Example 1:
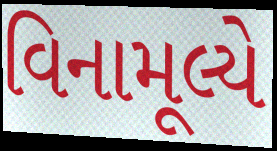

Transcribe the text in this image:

વિનામૂલ્યે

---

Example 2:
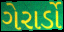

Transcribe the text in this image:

ગેરાર્ડો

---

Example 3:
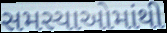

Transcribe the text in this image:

સમસ્યાઓમાંથી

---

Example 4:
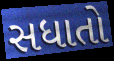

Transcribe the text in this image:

સધાતો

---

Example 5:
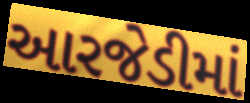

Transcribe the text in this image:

આરજેડીમાં